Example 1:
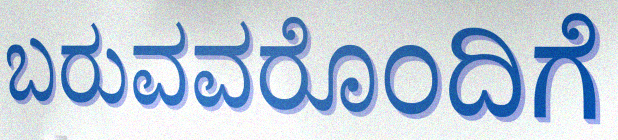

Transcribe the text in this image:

ಬರುವವರೊಂದಿಗೆ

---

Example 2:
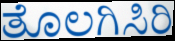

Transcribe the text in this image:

ತೊಲಗಿಸಿರಿ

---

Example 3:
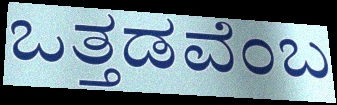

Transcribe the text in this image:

ಒತ್ತಡವೆಂಬ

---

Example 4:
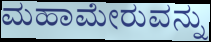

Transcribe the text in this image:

ಮಹಾಮೇರುವನ್ನು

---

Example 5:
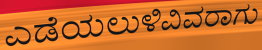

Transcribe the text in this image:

ಎಡೆಯಲುಳಿವಿವರಾಗು